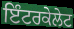
ਇੰਟਰਕੇਲੇਟ